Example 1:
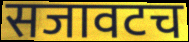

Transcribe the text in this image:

सजावटच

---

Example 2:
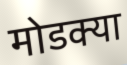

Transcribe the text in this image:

मोडक्या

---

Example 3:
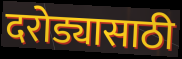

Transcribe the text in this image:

दरोड्यासाठी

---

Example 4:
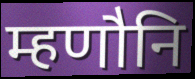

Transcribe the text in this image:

म्हणौनि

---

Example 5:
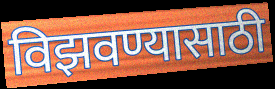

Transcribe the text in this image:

विझवण्यासाठी